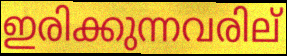
ഇരിക്കുന്നവരില്